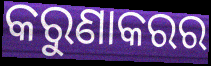
କରୁଣାକରର